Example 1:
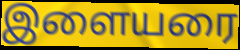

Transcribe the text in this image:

இளையரை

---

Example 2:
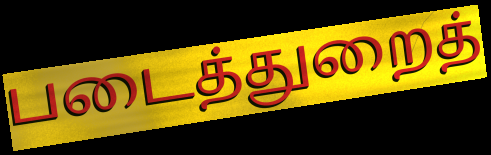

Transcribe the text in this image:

படைத்துறைத்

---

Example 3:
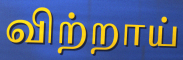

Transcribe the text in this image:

விற்றாய்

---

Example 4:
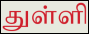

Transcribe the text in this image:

துள்ளி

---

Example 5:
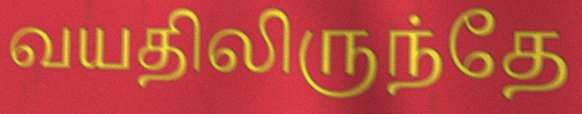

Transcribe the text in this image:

வயதிலிருந்தே